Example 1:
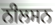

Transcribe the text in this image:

ਨੀਲਸਨ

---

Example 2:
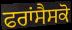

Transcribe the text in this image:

ਫਰਾਂਸੈਸਕੋ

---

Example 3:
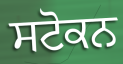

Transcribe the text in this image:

ਸਟੋਕਨ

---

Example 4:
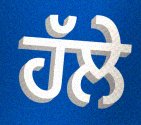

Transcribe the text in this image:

ਹੱਲੇ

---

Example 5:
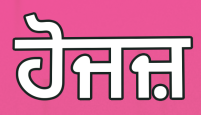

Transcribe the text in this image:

ਹੋਜਜ਼